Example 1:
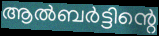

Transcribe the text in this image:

ആൽബർട്ടിന്റെ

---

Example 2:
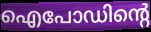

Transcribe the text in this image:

ഐപോഡിന്റെ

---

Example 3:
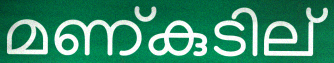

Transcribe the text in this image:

മണ്കുടില്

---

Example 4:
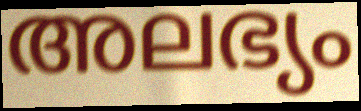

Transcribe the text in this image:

അലഭ്യം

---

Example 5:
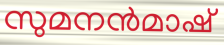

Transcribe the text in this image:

സുമനൻമാഷ്